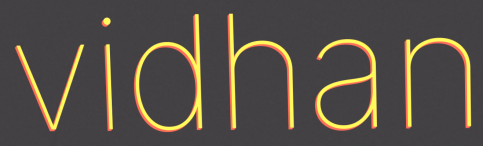
vidhan